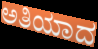
ಅತಿಯಾದ